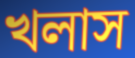
খলাস